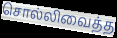
சொல்லிவைத்த